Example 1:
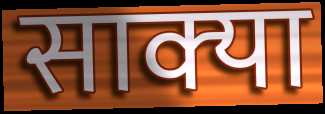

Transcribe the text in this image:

साक्या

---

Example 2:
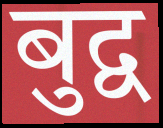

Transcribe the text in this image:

बुद्व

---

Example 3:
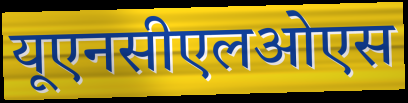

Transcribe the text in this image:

यूएनसीएलओएस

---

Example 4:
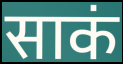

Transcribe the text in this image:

साकं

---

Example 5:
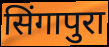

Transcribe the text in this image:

सिंगापुरा